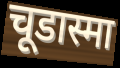
चूडास्मा